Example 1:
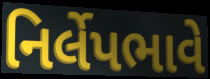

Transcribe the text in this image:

નિર્લેપભાવે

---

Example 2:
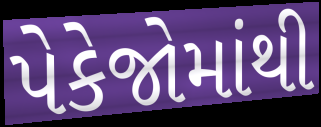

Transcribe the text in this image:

પેકેજોમાંથી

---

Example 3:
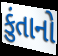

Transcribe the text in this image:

કુંતાનો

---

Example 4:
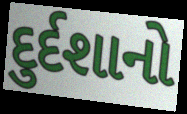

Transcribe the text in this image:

દુર્દશાનો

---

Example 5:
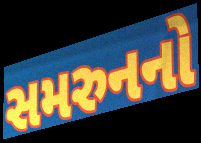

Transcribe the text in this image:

સમરુનનો